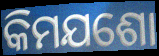
କିମଯଶୋ